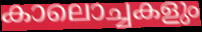
കാലൊച്ചകളും